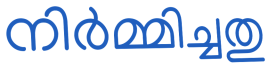
നിർമ്മിച്ചതു